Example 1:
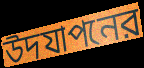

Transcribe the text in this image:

উদযাপনের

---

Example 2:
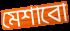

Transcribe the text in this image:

মেশাবো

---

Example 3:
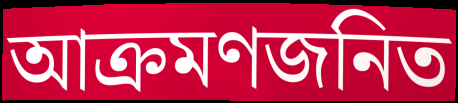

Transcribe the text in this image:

আক্রমণজনিত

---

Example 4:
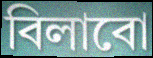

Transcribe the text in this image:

বিলাবো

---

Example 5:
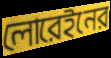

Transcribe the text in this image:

লোরেইনের